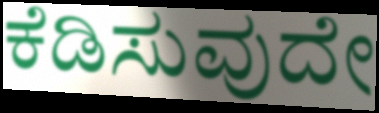
ಕೆಡಿಸುವುದೇ